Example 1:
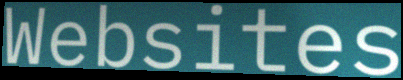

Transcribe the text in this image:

Websites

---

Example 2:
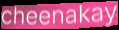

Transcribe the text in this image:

cheenakay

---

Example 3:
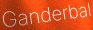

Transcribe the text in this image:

Ganderbal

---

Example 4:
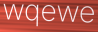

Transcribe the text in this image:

wqewe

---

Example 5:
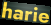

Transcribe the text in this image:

harie